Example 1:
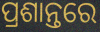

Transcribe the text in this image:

ପ୍ରଶାନ୍ତରେ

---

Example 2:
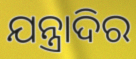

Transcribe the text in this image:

ଯନ୍ତ୍ରାଦିର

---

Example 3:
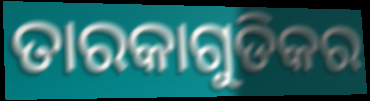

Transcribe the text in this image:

ତାରକାଗୁଡିକର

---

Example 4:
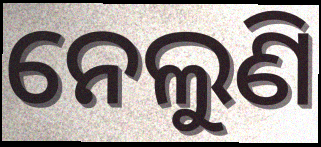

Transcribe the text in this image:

ନେଲୁଣି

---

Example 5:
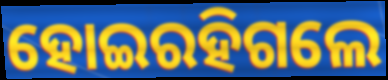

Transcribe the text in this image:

ହୋଇରହିଗଲେ